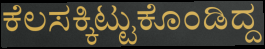
ಕೆಲಸಕ್ಕಿಟ್ಟುಕೊಂಡಿದ್ದ